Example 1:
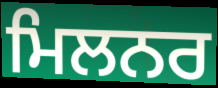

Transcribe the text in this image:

ਮਿਲਨਰ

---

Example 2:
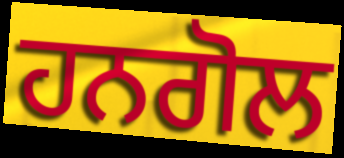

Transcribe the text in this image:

ਹਨਗੋਲ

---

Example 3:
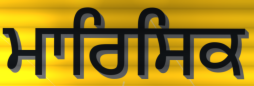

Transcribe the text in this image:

ਮਾਰਿਸਿਕ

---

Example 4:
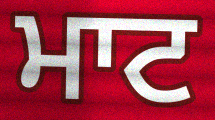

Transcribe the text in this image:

ਮਾਟ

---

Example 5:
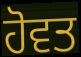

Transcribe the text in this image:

ਹੋਵਤ